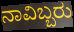
ನಾವಿಬ್ಬರು